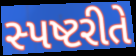
સ્પષ્ટરીતે